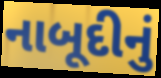
નાબૂદીનું